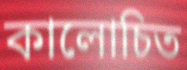
কালোচিত